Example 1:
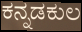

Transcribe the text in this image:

ಕನ್ನಡಕುಲ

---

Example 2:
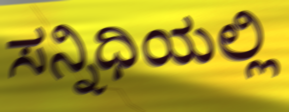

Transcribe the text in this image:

ಸನ್ನಿಧಿಯಲ್ಲಿ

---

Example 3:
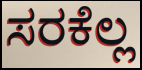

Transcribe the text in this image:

ಸರಕೆಲ್ಲ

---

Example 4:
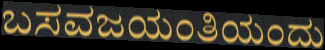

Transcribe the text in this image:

ಬಸವಜಯಂತಿಯಂದು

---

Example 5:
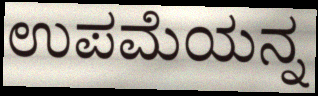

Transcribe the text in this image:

ಉಪಮೆಯನ್ನ